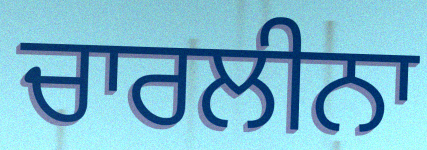
ਚਾਰਲੀਨਾ